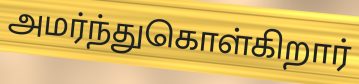
அமர்ந்துகொள்கிறார்